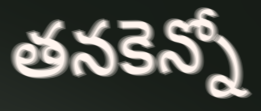
తనకెన్నో